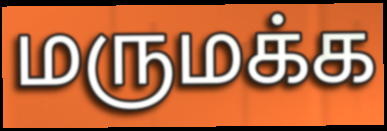
மருமக்க